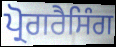
ਪ੍ਰੋਗਰੈਸਿੰਗ